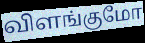
விளங்குமோ